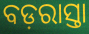
ବଡ଼ରାସ୍ତା